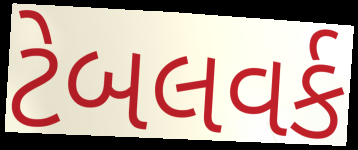
ટેબલવર્ક